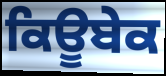
ਕਿਊਬੇਕ